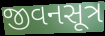
જીવનસૂત્ર